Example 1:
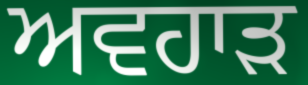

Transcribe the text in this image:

ਅਵਹਾੜ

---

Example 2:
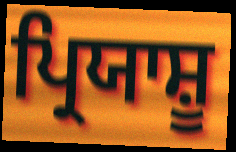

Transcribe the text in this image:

ਪ੍ਰਿਯਾਸ਼ੂ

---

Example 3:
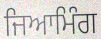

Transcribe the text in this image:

ਜਿਆਮਿੰਗ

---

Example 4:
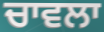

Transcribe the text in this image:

ਚਾਵਲਾ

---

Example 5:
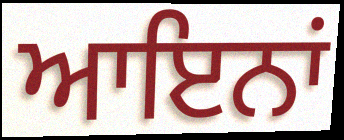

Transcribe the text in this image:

ਆਇਨਾਂ